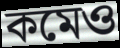
কমেও